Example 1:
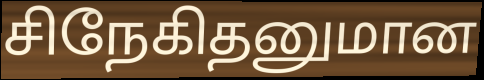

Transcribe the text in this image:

சிநேகிதனுமான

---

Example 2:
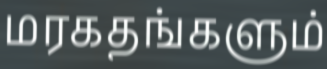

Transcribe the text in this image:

மரகதங்களும்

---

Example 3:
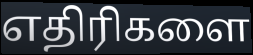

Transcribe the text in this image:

எதிரிகளை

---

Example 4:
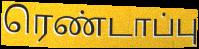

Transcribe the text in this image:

ரெண்டாப்பு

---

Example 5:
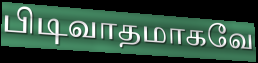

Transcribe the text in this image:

பிடிவாதமாகவே